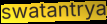
swatantrya